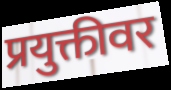
प्रयुक्तीवर